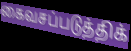
கைவசப்படுத்திக்